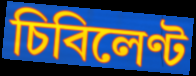
চিবিলেণ্ট